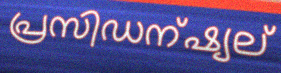
പ്രസിഡന്ഷ്യല്